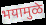
भयामुळे